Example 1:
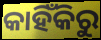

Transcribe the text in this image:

କାହିଁକିରୁ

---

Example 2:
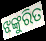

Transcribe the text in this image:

ଝଙ୍କୁରିତ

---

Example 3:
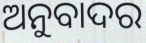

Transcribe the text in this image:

ଅନୁବାଦର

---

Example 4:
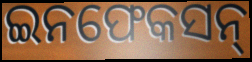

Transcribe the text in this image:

ଇନଫେକସନ୍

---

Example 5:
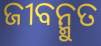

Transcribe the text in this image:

ଜୀବନ୍ମୁତ